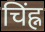
चिंह्न